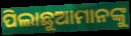
ପିଲାଛୁଆମାନଙ୍କୁ